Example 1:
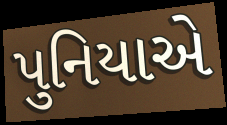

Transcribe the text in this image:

પુનિયાએ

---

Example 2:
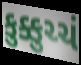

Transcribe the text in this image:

કુક્કુચ્ચં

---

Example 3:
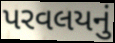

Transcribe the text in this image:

પરવલયનું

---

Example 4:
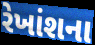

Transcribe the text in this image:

રેખાંશના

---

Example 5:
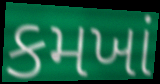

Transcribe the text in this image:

કમખાં